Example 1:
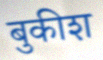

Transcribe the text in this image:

बुकीश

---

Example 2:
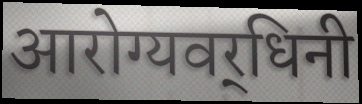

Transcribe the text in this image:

आरोग्यवर्धिनी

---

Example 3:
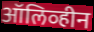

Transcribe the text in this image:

ऑलिव्हीन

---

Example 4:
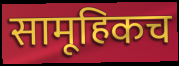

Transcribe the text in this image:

सामूहिकच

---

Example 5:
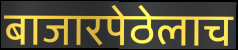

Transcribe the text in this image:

बाजारपेठेलाच